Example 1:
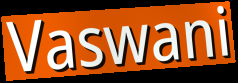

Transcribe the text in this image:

Vaswani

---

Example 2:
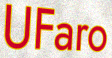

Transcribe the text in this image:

UFaro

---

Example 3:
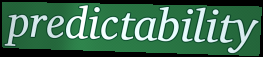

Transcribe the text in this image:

predictability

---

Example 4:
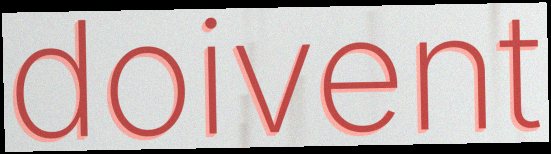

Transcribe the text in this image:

doivent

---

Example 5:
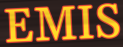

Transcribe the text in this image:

EMIS